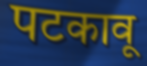
पटकावू